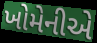
ખોમેનીએ